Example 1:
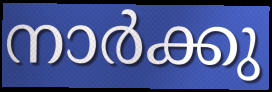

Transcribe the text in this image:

നാർക്കു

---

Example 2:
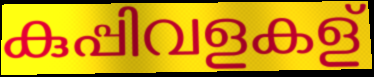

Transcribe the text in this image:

കുപ്പിവളകള്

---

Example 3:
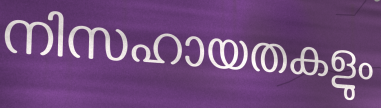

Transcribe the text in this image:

നിസഹായതകളും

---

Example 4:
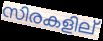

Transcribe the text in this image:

സിരകളില്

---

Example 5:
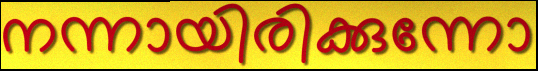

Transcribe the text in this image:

നന്നായിരിക്കുന്നോ